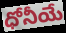
ధోనీయే